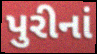
પુરીનાં